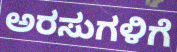
ಅರಸುಗಳಿಗೆ